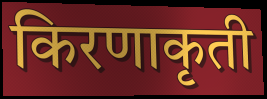
किरणाकृती